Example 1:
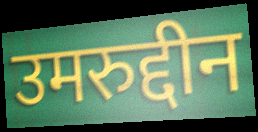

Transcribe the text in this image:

उमरुद्दीन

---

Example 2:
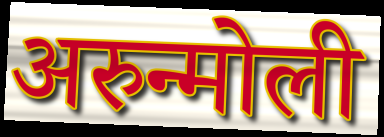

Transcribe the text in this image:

अरुन्मोली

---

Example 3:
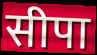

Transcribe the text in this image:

सीपा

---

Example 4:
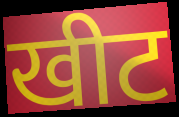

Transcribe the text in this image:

खीट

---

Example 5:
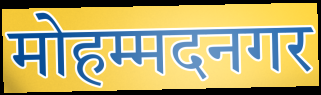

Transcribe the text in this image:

मोहम्मदनगर